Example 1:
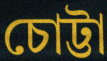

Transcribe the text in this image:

চোট্টা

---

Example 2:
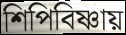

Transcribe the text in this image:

শিপিবিষ্ণায়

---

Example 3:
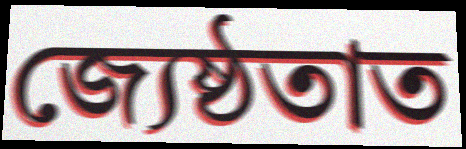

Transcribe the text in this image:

জ্যেষ্ঠতাত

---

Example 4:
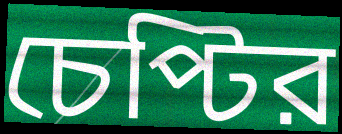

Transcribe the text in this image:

চেপ্টির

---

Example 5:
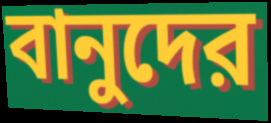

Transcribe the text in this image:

বানুদের